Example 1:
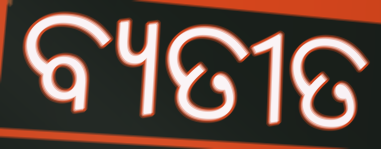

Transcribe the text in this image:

ବ୍ଯତୀତ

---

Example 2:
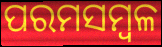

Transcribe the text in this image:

ପରମସମ୍ବଳ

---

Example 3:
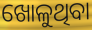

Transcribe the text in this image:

ଖୋଳୁଥିବା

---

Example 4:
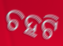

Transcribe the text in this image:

ଚହଟି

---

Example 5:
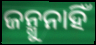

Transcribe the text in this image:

ଜନ୍ମୁନାହିଁ